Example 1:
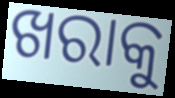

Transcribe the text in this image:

ଖରାକୁ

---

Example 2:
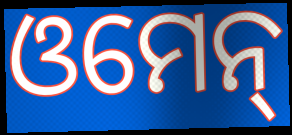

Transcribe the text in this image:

ଓମେନ୍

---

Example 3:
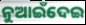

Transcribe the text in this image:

ନୁଆଇଁଦେଇ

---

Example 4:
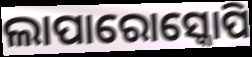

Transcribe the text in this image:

ଲାପାରୋସ୍କୋପି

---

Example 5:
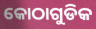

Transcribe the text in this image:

କୋଠାଗୁଡିକ